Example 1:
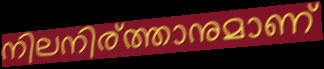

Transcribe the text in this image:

നിലനിര്ത്താനുമാണ്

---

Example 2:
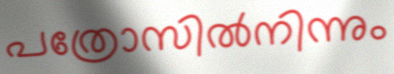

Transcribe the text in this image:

പത്രോസിൽനിന്നും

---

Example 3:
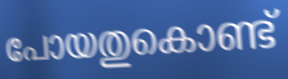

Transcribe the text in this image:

പോയതുകൊണ്ട്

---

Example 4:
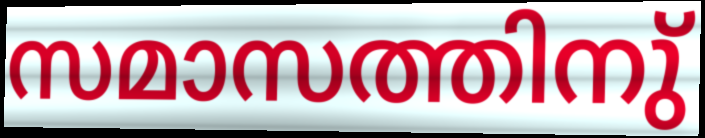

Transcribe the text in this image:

സമാസത്തിനു്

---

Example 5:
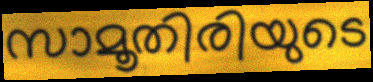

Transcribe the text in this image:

സാമൂതിരിയുടെ